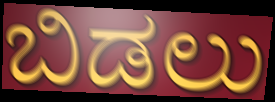
ಬಿಡಲು